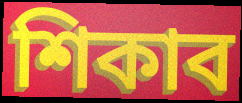
শিকাব